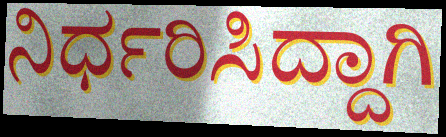
ನಿರ್ಧರಿಸಿದ್ದಾಗಿ